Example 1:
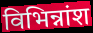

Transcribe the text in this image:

विभिन्नांश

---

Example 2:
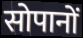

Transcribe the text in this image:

सोपानों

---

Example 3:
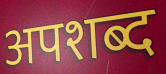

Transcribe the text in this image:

अपशब्द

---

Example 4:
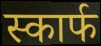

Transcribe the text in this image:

स्कार्फ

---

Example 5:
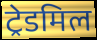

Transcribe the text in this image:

ट्रेडमिल